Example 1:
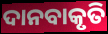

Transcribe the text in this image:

ଦାନବାକୃତି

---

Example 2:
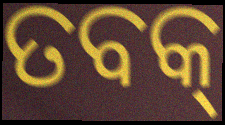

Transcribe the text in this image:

ତବକ୍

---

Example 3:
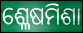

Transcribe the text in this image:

ଶ୍ଳେଷମିଶା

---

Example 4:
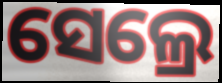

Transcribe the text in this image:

ସେଲ୍ରେ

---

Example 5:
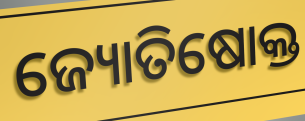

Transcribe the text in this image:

ଜ୍ୟୋତିଷୋକ୍ତ